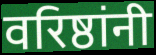
वरिष्ठांनी